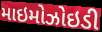
માઇમોઝોઇડી